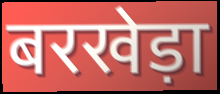
बरखेड़ा